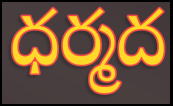
ధర్మద